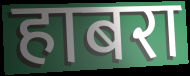
हाबरा